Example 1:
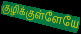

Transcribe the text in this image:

குழிக்குள்ளேயே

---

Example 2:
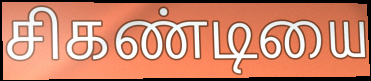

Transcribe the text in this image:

சிகண்டியை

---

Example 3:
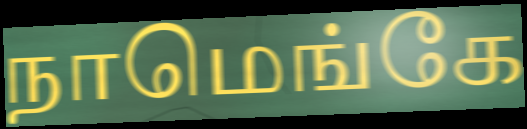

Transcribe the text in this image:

நாமெங்கே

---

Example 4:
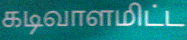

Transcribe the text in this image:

கடிவாளமிட்ட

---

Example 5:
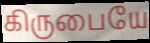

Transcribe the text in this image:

கிருபையே